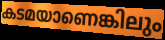
കടമയാണെങ്കിലും